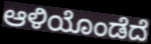
ಆಳಿಯೊಂಡೆದೆ